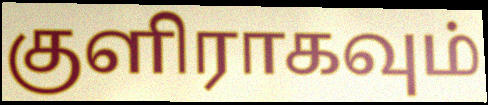
குளிராகவும்